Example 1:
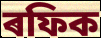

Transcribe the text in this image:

ৰফিক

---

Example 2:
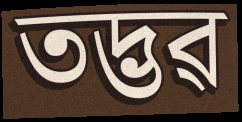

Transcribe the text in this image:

তদ্ভৱ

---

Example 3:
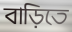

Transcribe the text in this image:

বাড়িতে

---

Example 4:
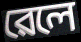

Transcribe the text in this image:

ৱেলে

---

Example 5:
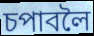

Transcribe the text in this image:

চপাবলৈ